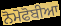
ਨੋਮੋਫੋਬੀਆ